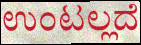
ಉಂಟಲ್ಲದೆ